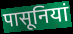
पासूनियां